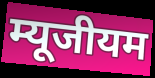
म्यूजीयम